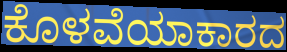
ಕೊಳವೆಯಾಕಾರದ